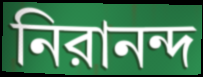
নিরানন্দ